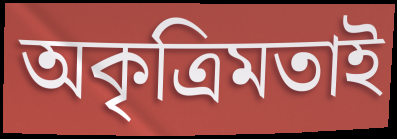
অকৃত্রিমতাই